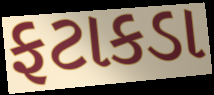
ફટાકડા